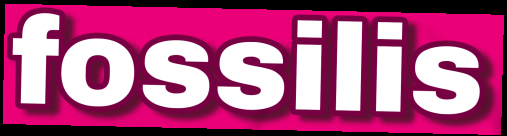
fossilis